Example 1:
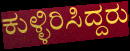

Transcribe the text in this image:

ಕುಳ್ಳಿರಿಸಿದ್ದರು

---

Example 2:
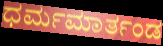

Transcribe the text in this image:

ಧರ್ಮಮಾರ್ತಂಡ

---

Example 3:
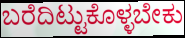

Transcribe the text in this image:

ಬರೆದಿಟ್ಟುಕೊಳ್ಳಬೇಕು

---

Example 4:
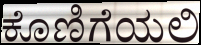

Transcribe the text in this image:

ಕೊಣಿಗೆಯಲಿ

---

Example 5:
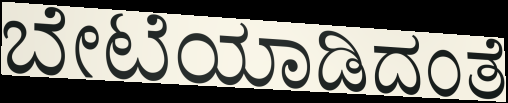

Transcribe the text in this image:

ಬೇಟೆಯಾಡಿದಂತೆ